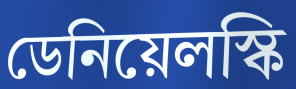
ডেনিয়েলস্কি